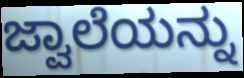
ಜ್ವಾಲೆಯನ್ನು